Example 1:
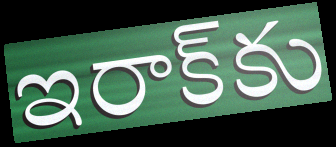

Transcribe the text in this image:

ఇరాక్‌కు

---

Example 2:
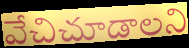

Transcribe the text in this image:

వేచిచూడాలని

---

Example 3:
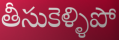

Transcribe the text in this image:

తీసుకెళ్ళిపో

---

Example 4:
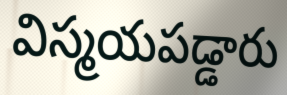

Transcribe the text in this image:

విస్మయపడ్డారు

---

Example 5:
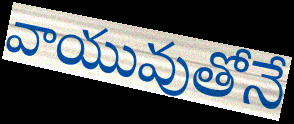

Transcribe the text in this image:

వాయువుతోనే